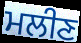
ਮਲੀਣ